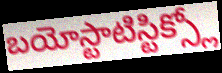
బయోస్టాటిస్టిక్స్లో